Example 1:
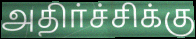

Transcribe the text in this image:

அதிர்ச்சிக்கு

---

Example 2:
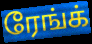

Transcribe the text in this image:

ரேங்க்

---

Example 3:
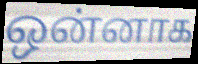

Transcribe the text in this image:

ஒன்னாக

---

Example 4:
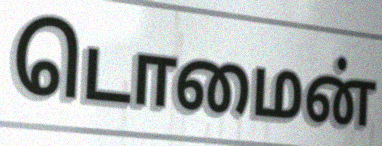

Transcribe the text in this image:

டொமைன்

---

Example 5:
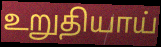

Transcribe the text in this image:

உறுதியாய்